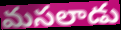
మసలాడు